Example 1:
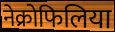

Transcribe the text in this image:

नेक्रोफिलिया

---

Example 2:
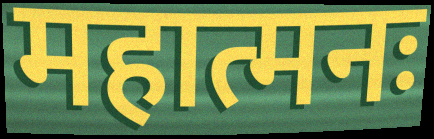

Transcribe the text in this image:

महात्मनः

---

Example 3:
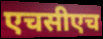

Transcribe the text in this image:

एचसीएच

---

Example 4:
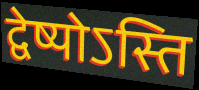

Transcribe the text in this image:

द्वेष्योऽस्ति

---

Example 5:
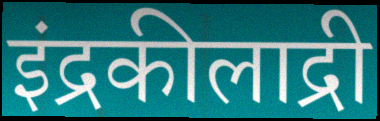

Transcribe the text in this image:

इंद्रकीलाद्री